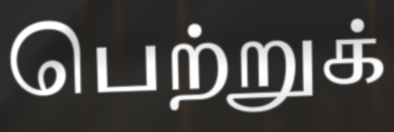
பெற்றுக்